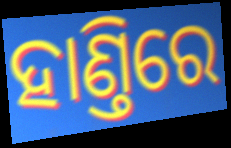
ହାଣ୍ତିରେ